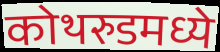
कोथरुडमध्ये